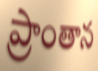
ప్రాంతాన